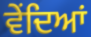
ਵੇਂਦਿਆਂ